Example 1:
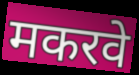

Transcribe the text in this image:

मकरवे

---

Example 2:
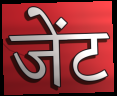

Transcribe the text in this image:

जेंट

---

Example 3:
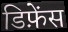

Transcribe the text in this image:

डिफ़ेंस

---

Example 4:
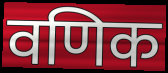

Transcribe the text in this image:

वणिक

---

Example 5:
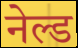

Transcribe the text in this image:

नेल्ड